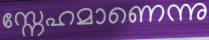
സ്നേഹമാണെന്നു